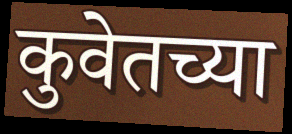
कुवेतच्या